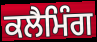
ਕਲੈਮਿੰਗ